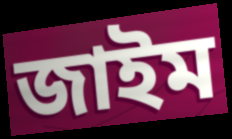
জাইম